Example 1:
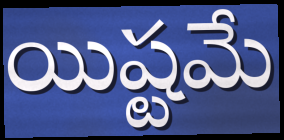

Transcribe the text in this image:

యిష్టమే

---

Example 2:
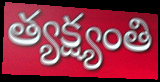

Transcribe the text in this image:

త్యక్ష్యంతి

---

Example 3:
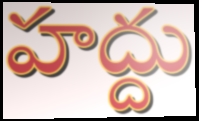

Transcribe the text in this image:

హద్దు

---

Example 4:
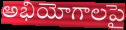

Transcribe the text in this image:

అభియోగాలపై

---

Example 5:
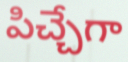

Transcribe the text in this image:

పిచ్చేగా